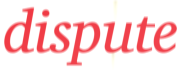
dispute